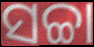
ସଚ୍ଚା